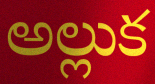
అల్లుక